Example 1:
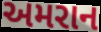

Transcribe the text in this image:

અમરાન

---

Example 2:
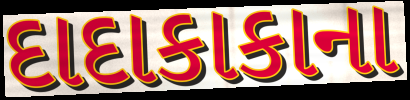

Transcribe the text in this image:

દાદાકાકાના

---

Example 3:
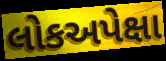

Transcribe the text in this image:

લોકઅપેક્ષા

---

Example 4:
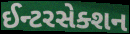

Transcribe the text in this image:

ઈન્ટરસેક્શન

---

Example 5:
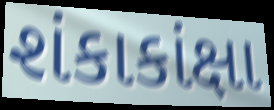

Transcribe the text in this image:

શંકાકાંક્ષા